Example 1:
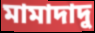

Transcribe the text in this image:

মামাদাদু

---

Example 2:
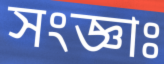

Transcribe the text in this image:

সংজ্ঞাঃ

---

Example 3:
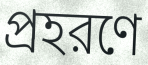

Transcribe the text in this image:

প্রহরণে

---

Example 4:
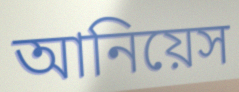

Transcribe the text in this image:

আনিয়েস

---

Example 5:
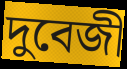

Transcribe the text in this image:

দুবেজী